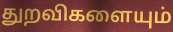
துறவிகளையும்